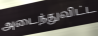
அடைந்துவிட்ட